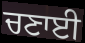
ਚਣਾਈ